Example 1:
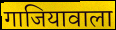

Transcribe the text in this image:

गाजियावाला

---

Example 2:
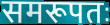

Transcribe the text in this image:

समरूपतः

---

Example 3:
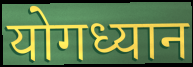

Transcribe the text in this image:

योगध्यान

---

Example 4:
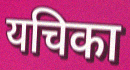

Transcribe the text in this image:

यचिका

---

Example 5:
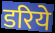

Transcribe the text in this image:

डरिये